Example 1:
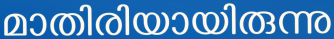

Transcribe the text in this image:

മാതിരിയായിരുന്നു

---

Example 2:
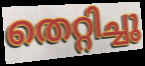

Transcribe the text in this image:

തെറ്റിച്ചു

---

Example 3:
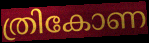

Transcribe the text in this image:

ത്രികോണ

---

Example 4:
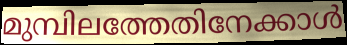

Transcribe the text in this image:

മുമ്പിലത്തേതിനേക്കാൾ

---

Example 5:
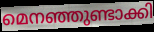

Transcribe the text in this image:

മെനഞ്ഞുണ്ടാക്കി